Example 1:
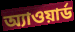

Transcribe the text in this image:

অ্যাওয়ার্ড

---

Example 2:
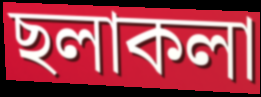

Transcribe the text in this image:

ছলাকলা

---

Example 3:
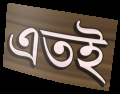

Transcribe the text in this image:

এতই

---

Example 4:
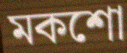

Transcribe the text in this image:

মকশো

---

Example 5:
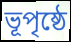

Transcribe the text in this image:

ভূপৃষ্ঠে